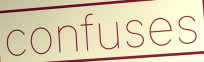
confuses